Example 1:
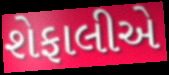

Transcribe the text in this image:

શેફાલીએ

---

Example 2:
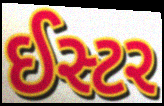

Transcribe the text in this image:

ઈસ્ટર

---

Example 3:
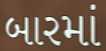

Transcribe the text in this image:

બારમાં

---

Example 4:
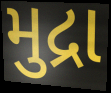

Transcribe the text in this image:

મુદ્રા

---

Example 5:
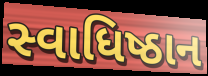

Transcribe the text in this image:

સ્વાધિષ્ઠાન